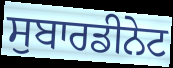
ਸੁਬਾਰਡੀਨੇਟ